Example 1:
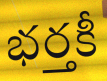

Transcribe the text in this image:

భర్తకీ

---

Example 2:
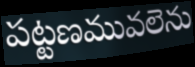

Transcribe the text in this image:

పట్టణమువలెను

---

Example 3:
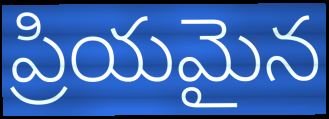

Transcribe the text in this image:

ప్రియమైన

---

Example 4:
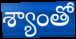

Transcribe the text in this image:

శ్యాంతో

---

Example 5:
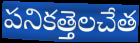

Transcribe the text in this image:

పనికత్తెలచేత